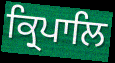
ਕ੍ਰਿਪਾਲਿ